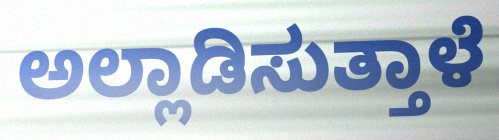
ಅಲ್ಲಾಡಿಸುತ್ತಾಳೆ